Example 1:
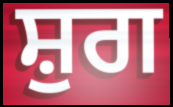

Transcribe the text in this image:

ਸ਼ੁਗ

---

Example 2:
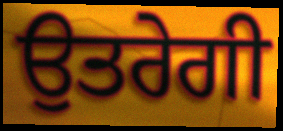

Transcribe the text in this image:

ਉਤਰੇਗੀ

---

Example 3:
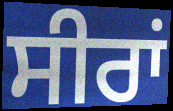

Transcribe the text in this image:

ਸੀਰਾਂ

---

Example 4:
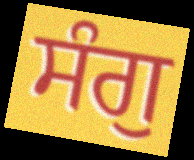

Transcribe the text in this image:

ਸੰਗੁ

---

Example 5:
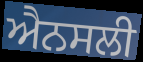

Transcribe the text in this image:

ਐਨਸਲੀ